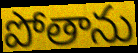
పోతాను